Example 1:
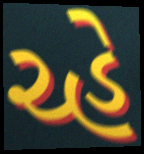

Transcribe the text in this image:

ચ્હે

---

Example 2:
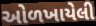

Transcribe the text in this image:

ઓળખાયેલી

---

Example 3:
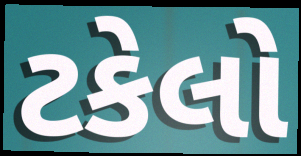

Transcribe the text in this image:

ટકેલો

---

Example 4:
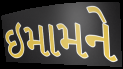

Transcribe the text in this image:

ઇમામને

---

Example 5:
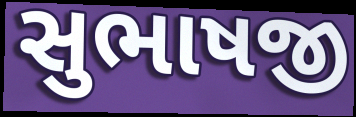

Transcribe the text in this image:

સુભાષજી